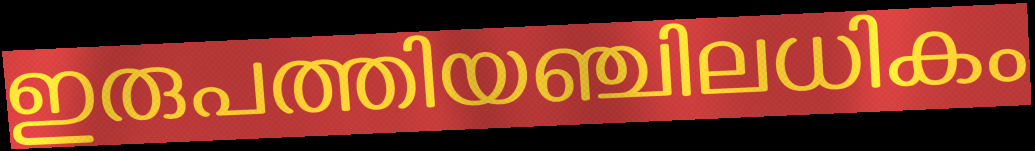
ഇരുപത്തിയഞ്ചിലധികം